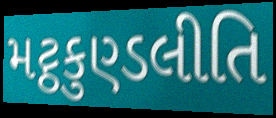
મટ્ઠકુણ્ડલીતિ